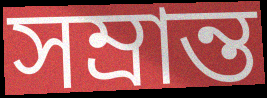
সম্রান্ত